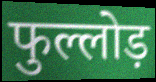
फुल्लोड़